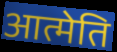
आत्मेति